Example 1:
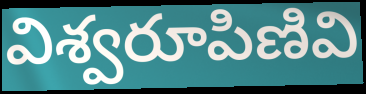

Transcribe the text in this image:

విశ్వరూపిణివి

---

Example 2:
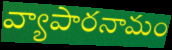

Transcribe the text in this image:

వ్యాపారనామం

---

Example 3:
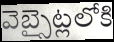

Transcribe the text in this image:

వెబ్సైట్లలోకి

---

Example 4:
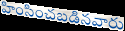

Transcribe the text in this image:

హింసించబడినవారు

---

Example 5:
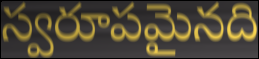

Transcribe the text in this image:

స్వరూపమైనది